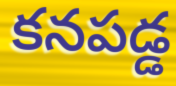
కనపడ్డ